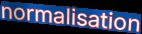
normalisation